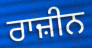
ਰਾਜ਼ੀਨ